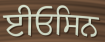
ਈਓਸਿਨ